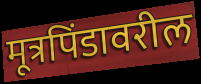
मूत्रपिंडावरील